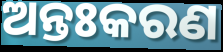
ଅନ୍ତଃକରଣ